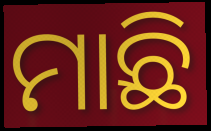
ମାଛି